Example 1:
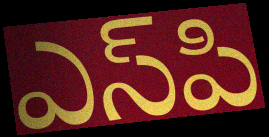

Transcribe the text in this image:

ఎస్‌పి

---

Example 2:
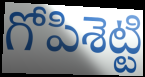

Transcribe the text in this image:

గోపిశెట్టి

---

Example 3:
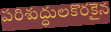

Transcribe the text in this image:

పరిశుద్ధులకొరకైన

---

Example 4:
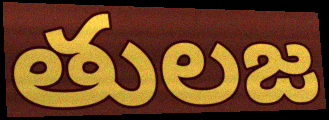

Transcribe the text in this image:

తులజ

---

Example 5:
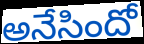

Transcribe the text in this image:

అనేసిందో